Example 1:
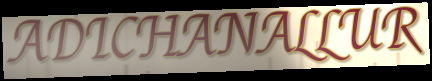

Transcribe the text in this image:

ADICHANALLUR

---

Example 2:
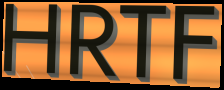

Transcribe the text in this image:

HRTF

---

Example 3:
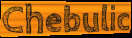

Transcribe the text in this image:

Chebulic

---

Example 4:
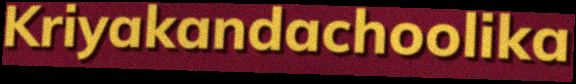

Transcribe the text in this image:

Kriyakandachoolika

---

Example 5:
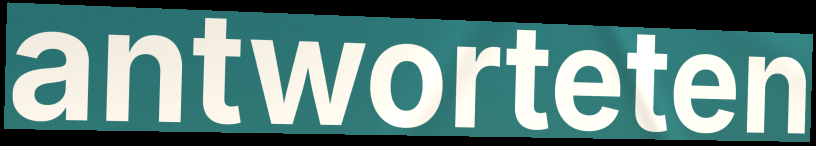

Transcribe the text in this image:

antworteten